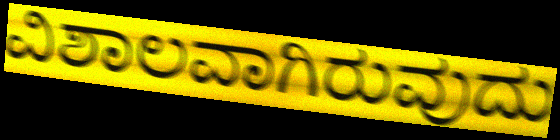
ವಿಶಾಲವಾಗಿರುವುದು